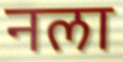
नला